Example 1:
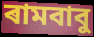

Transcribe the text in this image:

ৰামবাবু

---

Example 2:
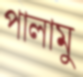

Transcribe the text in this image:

পালামু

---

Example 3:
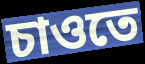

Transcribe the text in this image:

চাওতে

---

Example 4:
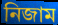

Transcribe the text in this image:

নিজাম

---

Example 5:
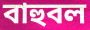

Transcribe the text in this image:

বাহুবল